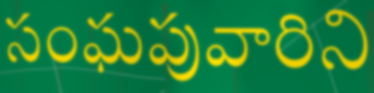
సంఘపువారిని